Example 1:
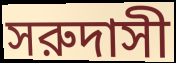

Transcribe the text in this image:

সরুদাসী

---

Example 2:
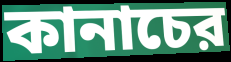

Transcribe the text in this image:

কানাচের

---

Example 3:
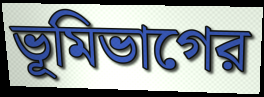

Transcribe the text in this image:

ভূমিভাগের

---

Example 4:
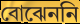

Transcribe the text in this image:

বোঝেননি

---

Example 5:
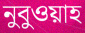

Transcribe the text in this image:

নুবুওয়াহ